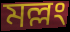
মল্লং